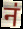
न॑